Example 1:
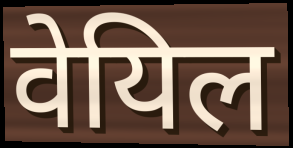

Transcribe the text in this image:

वेयिल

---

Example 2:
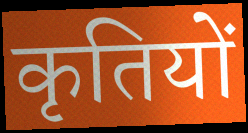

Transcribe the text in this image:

कृतियों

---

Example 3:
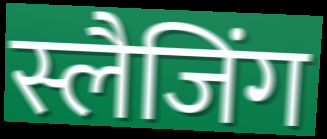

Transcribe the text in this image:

स्लैजिंग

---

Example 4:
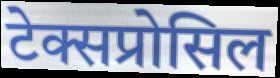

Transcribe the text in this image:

टेक्सप्रोसिल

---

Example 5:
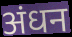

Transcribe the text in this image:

अंधन